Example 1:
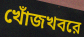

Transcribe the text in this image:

খোঁজখবরে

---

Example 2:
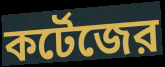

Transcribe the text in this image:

কর্টেজের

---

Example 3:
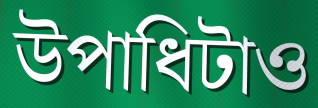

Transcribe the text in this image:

উপাধিটাও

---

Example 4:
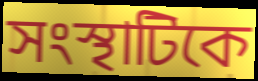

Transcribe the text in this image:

সংস্থাটিকে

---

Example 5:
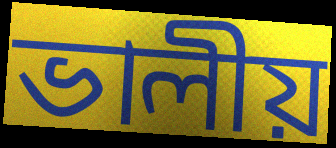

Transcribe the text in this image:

ভালীয়